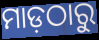
ମାଡ଼ଠାରୁ